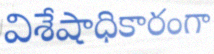
విశేషాధికారంగా